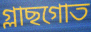
গ্লাছগোত